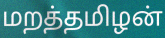
மறத்தமிழன்